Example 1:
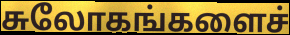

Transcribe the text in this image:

சுலோகங்களைச்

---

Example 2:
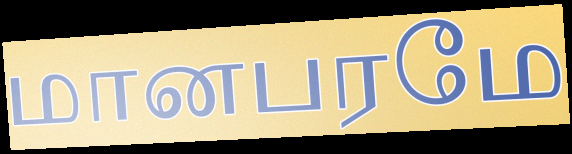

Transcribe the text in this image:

மானபரமே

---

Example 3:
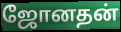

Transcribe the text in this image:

ஜோனதன்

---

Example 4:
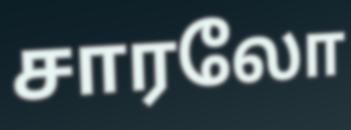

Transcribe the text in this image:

சாரலோ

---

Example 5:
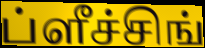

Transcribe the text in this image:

ப்ளீச்சிங்